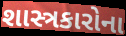
શાસ્ત્રકારોના